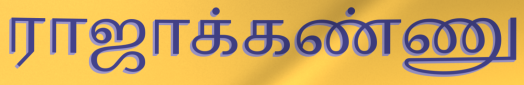
ராஜாக்கண்ணு